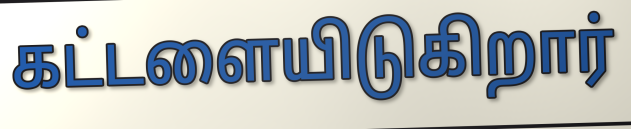
கட்டளையிடுகிறார்